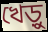
খেড়ু